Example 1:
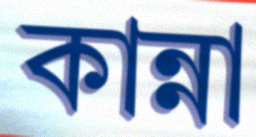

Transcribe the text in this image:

কান্না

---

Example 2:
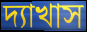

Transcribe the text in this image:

দ্যাখাস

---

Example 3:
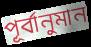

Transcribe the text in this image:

পূর্বানুমান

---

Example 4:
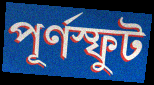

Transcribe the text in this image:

পূর্ণস্ফুট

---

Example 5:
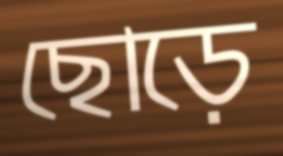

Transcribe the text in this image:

ছোড়ে